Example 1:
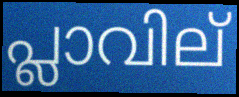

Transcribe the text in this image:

പ്ലാവില്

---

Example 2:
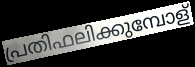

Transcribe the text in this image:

പ്രതിഫലിക്കുമ്പോള്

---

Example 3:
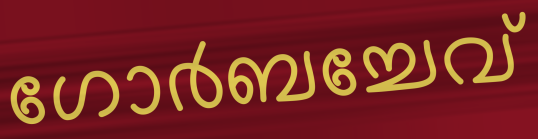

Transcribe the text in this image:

ഗോർബച്ചേവ്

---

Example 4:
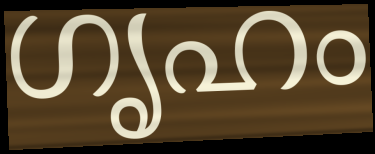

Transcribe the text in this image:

ഗൃഹം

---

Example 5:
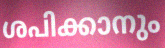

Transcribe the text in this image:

ശപിക്കാനും